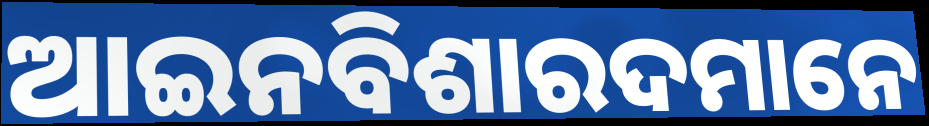
ଆଇନବିଶାରଦମାନେ